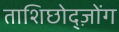
ताशिछोद्ज़ोंग